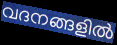
വദനങ്ങളിൽ